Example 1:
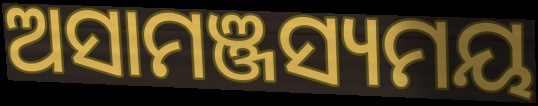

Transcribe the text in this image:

ଅସାମଞ୍ଜସ୍ୟମୟ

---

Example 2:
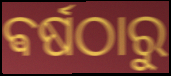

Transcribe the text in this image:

ଵର୍ଷଠାରୁ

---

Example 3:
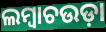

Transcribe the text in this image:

ଲମ୍ବାଚଉଡ଼ା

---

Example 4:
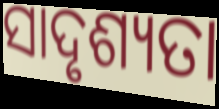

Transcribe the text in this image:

ସାଦୃଶ୍ୟତା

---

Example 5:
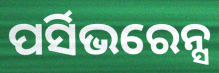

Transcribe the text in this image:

ପର୍ସିଭରେନ୍ସ